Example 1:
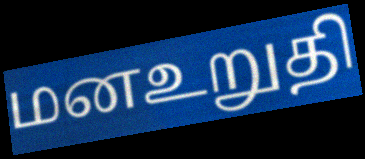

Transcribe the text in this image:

மனஉறுதி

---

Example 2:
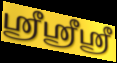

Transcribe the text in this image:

ஸ்ரீஸ்ரீஸ்ரீ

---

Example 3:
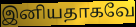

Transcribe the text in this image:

இனியதாகவே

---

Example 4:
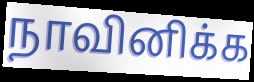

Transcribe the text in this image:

நாவினிக்க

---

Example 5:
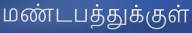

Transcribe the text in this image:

மண்டபத்துக்குள்